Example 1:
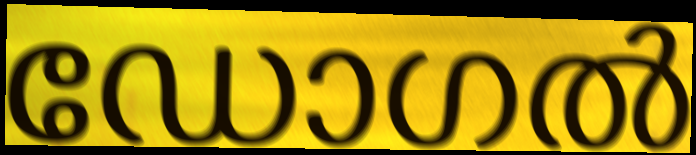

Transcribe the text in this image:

ഡോഗൽ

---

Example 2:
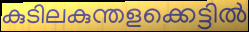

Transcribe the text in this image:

കുടിലകുന്തളക്കെട്ടിൽ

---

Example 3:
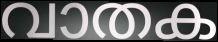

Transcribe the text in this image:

വാതക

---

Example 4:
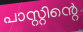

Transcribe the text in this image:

പാസ്റ്റിന്റെ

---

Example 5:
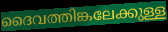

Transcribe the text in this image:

ദൈവത്തിങ്കലേക്കുള്ള